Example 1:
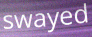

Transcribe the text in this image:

swayed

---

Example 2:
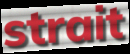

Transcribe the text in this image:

strait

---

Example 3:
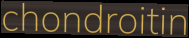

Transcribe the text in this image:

chondroitin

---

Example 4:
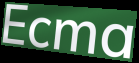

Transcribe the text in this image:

Ecma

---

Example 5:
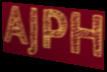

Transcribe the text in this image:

AJPH